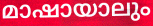
മാഷായാലും